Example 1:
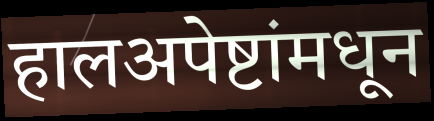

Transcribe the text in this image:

हालअपेष्टांमधून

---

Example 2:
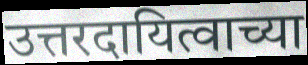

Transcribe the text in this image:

उत्तरदायित्वाच्या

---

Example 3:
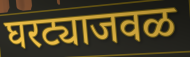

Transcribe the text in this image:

घरट्याजवळ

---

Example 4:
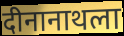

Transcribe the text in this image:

दीनानाथला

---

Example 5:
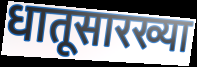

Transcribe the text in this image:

धातूसारख्या